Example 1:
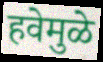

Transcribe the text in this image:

हवेमुळे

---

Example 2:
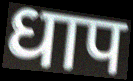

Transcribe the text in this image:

धाप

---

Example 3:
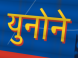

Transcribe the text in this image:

युनोने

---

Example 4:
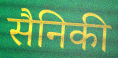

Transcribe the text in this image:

सैनिकी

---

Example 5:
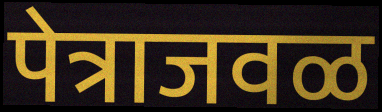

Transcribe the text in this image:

पेत्राजवळ